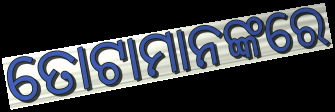
ତୋଟାମାନଙ୍କରେ